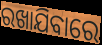
ରଖାଯିବାରେ